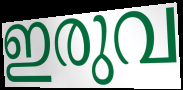
ഇരുവ